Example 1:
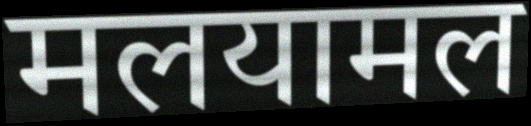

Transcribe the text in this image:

मलयामल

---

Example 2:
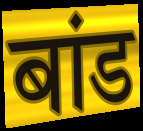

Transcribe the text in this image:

बांड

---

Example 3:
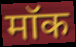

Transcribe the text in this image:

मॉक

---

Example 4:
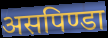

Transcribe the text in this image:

असपिण्डा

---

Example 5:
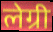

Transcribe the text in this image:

लेग्री